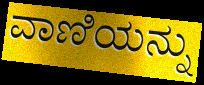
ವಾಣಿಯನ್ನು